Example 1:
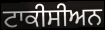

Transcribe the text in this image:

ਟਾਕੀਸੀਅਨ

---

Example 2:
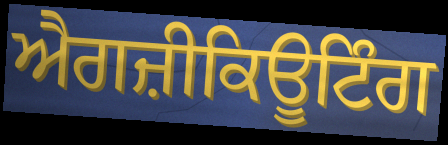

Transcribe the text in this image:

ਐਗਜ਼ੀਕਿਊਟਿੰਗ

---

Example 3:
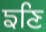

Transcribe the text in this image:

ਙਣਿ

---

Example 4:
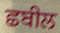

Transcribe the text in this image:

ਛਬੀਲ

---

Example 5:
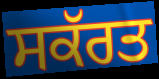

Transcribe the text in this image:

ਸਕੱਰਤ